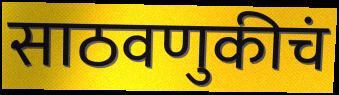
साठवणुकीचं